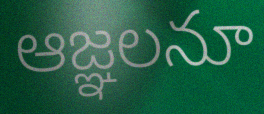
ఆజ్ఞలనూ